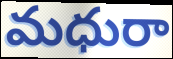
మధురా